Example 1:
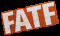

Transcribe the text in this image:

FATF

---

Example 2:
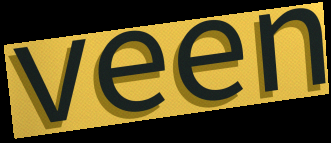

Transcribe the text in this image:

veen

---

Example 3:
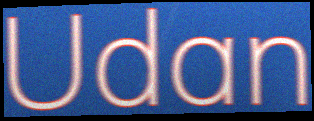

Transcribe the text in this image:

Udan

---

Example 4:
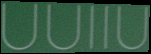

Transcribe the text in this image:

UUIIU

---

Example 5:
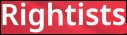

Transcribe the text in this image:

Rightists